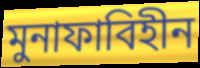
মুনাফাবিহীন